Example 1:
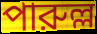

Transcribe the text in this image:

পারুল্ল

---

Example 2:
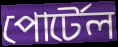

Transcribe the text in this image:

পোর্টেল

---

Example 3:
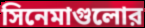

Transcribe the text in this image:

সিনেমাগুলোর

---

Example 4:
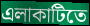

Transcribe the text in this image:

এলাকাটিতে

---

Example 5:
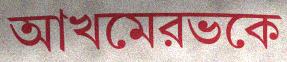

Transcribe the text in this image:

আখমেরভকে